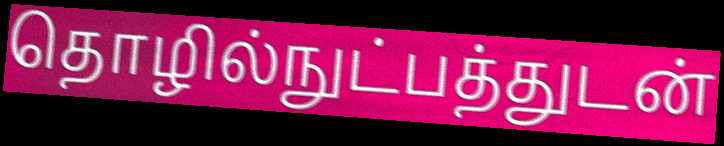
தொழில்நுட்பத்துடன்